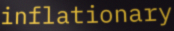
inflationary